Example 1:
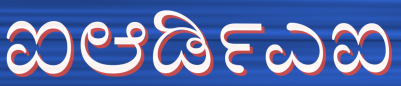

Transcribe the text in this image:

ಐಆರ್ಡಿಎಐ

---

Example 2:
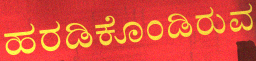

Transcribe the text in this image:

ಹರಡಿಕೊಂಡಿರುವ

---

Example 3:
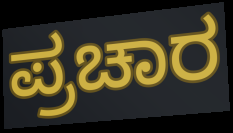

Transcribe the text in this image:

ಪ್ರಚಾರ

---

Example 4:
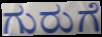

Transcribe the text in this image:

ಗುರುಗೆ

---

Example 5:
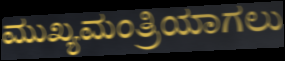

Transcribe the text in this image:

ಮುಖ್ಯಮಂತ್ರಿಯಾಗಲು